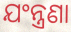
ଯଂନ୍ତ୍ରଣା